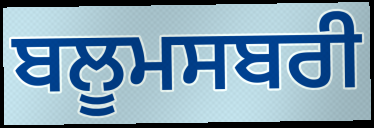
ਬਲੂਮਸਬਰੀ